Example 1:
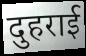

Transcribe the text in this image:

दुहराई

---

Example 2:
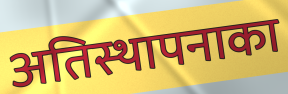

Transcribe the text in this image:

अतिस्थापनाका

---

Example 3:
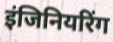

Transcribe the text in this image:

इंजिनियरिंग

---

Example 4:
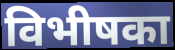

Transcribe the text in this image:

विभीषका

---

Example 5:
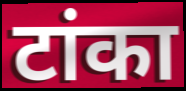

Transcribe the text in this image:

टांका